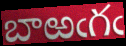
బాఱఁగఁ